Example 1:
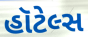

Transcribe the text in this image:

હૉટેલ્સ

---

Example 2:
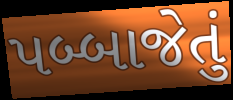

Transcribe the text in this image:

પબ્બાજેતું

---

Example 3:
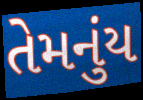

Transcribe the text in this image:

તેમનુંય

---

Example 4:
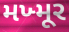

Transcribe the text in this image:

મખ્મૂર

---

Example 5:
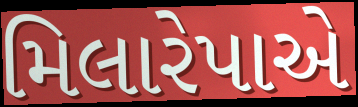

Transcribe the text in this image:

મિલારેપાએ